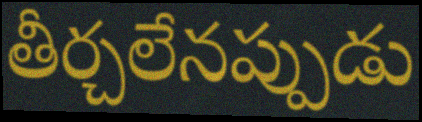
తీర్చలేనప్పుడు